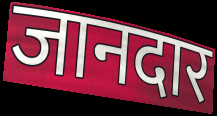
जानदार